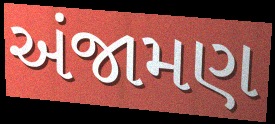
અંજામણ